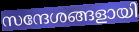
സന്ദേശങ്ങളായി